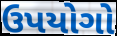
ઉપયોગો